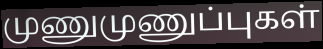
முணுமுணுப்புகள்